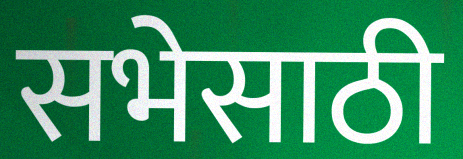
सभेसाठी